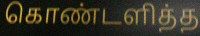
கொண்டளித்த